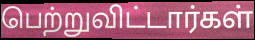
பெற்றுவிட்டார்கள்